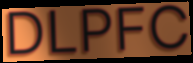
DLPFC